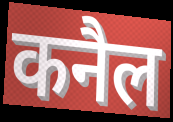
कनैल